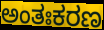
ಅಂತಃಕರಣ